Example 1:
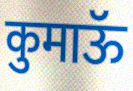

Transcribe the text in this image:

कुमाऊॅ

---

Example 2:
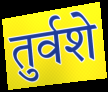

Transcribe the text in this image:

तुर्वशे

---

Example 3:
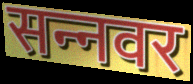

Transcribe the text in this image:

सन्नवर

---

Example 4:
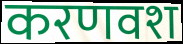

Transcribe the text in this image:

करणवश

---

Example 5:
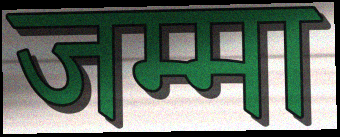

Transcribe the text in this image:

जम्मा